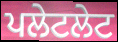
ਪਲੇਟਲੇਟ